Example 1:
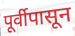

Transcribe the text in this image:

पूर्वीपासून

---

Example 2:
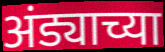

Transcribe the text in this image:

अंड्याच्या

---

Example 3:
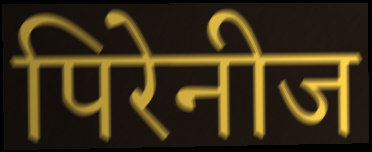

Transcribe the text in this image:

पिरेनीज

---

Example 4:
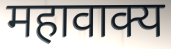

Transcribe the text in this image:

महावाक्य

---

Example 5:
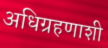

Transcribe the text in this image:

अधिग्रहणाशी